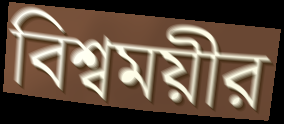
বিশ্বময়ীর